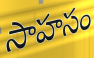
సాహసం